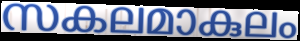
സകലമാകുലം